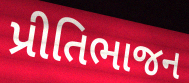
પ્રીતિભાજન